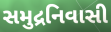
સમુદ્રનિવાસી